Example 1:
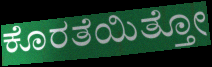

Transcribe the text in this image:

ಕೊರತೆಯಿತ್ತೋ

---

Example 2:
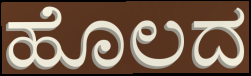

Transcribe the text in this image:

ಹೊಲದ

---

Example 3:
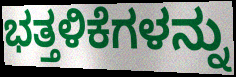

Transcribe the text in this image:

ಭತ್ತಳಿಕೆಗಳನ್ನು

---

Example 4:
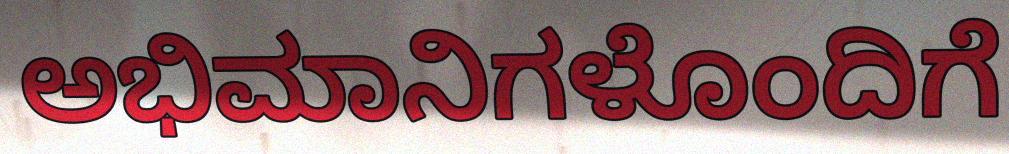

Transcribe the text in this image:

ಅಭಿಮಾನಿಗಳೊಂದಿಗೆ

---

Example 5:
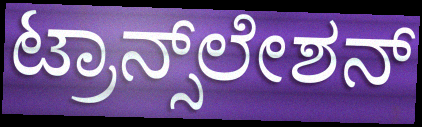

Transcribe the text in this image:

ಟ್ರಾನ್ಸ್‌ಲೇಶನ್